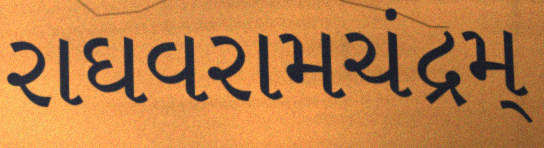
રાઘવરામચંદ્રમ્